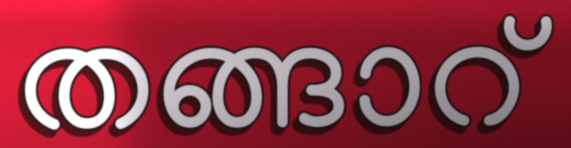
തങ്ങാറ്